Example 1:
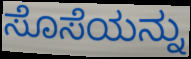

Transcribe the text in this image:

ಸೊಸೆಯನ್ನು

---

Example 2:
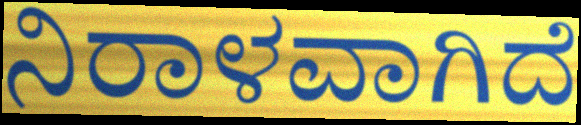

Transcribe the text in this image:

ನಿರಾಳವಾಗಿದೆ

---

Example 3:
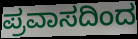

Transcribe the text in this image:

ಪ್ರವಾಸದಿಂದ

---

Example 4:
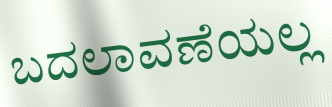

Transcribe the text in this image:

ಬದಲಾವಣೆಯಲ್ಲ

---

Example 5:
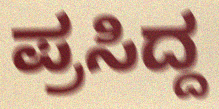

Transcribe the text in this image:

ಪ್ರಸಿದ್ದ